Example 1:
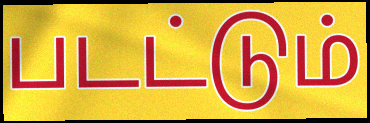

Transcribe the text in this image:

படட்டும்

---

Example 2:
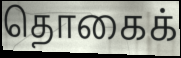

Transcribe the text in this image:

தொகைக்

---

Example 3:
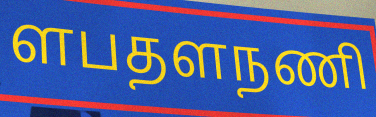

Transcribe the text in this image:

ளபதளநணி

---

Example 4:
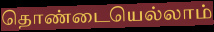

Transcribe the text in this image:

தொண்டையெல்லாம்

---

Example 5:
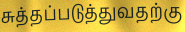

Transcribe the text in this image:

சுத்தப்படுத்துவதற்கு